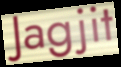
Jagjit